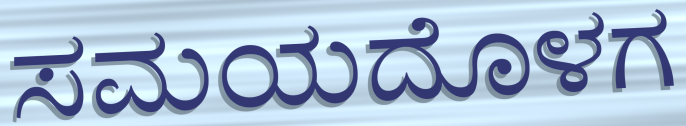
ಸಮಯದೊಳಗ